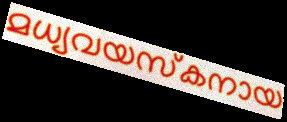
മധ്യവയസ്കനായ